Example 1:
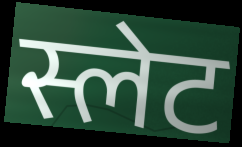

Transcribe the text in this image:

स्लेट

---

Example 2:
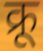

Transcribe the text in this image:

क्रू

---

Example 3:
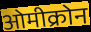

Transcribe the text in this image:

ओमीक्रोन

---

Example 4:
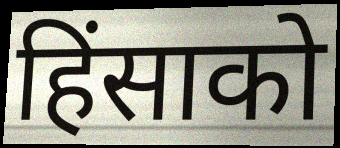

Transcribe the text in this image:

हिंसाको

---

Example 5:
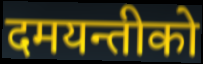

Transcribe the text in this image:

दमयन्तीको